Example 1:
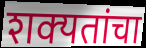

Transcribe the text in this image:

शक्यतांचा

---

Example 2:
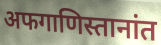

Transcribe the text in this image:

अफगाणिस्तानांत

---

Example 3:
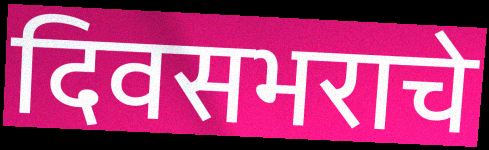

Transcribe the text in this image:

दिवसभराचे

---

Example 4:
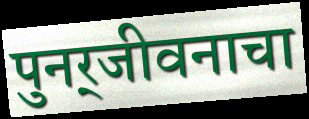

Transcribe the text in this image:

पुनर्जीवनाचा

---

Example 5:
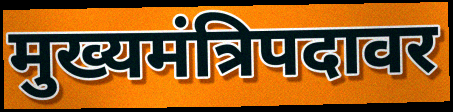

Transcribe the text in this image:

मुख्यमंत्रिपदावर